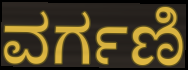
ವರ್ಗಣಿ